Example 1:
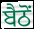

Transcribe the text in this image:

ਬੈਠੋਂ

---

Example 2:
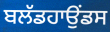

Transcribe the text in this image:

ਬਲੱਡਹਾਉਂਡਸ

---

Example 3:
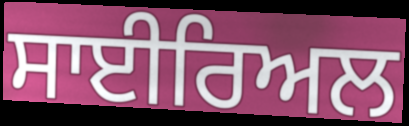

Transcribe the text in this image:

ਸਾਈਰਿਅਲ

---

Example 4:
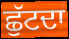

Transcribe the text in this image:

ਛੁੱਟਦਾ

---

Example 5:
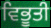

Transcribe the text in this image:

ਵਿਭੂਤੀ